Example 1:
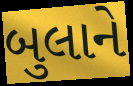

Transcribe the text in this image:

બુલાને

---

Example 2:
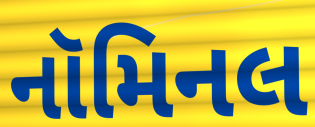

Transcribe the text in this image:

નૉમિનલ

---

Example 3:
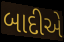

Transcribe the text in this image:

બાદીએ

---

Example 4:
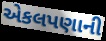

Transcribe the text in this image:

એકલપણાની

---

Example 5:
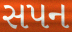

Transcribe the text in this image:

સપન